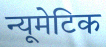
न्यूमेटिक